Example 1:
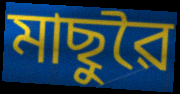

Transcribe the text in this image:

মাছুৱৈ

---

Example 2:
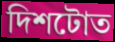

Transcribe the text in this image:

দিশটোত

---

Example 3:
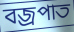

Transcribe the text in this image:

বজ্ৰপাত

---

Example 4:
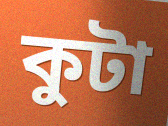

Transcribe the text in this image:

কুটা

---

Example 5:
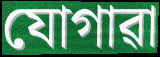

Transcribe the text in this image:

যোগাৱা